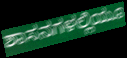
ಶಾಸನಗಳಲ್ಲಿಯೂ